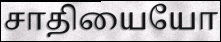
சாதியையோ